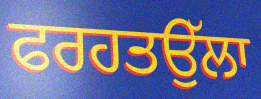
ਫਰਹਤਉੱਲਾ